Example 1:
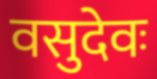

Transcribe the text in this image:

वसुदेवः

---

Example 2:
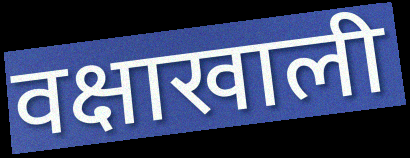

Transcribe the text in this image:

वक्षाखाली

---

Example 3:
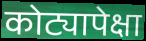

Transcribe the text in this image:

कोट्यापेक्षा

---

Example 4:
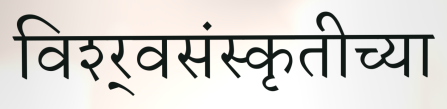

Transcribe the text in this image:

विश्र्वसंस्कृतीच्या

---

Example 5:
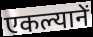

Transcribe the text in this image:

एकल्यानें